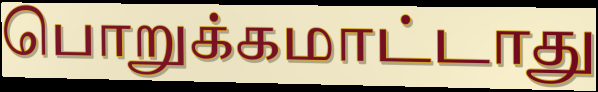
பொறுக்கமாட்டாது